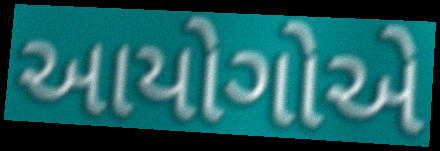
આયોગોએ